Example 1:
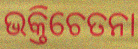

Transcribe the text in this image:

ଭକ୍ତିଚେତନା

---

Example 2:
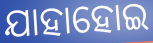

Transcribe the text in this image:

ଯାହାହୋଇ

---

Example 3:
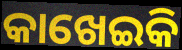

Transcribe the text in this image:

କାଖେଇକି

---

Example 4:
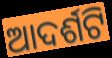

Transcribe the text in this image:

ଆଦର୍ଶଟି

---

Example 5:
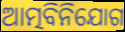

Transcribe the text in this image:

ଆତ୍ମବିନିଯୋଗ